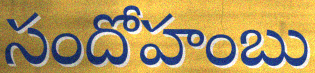
సందోహంబు